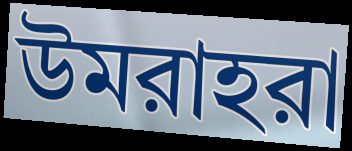
উমরাহরা